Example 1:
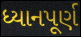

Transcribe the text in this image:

ધ્યાનપૂર્ણ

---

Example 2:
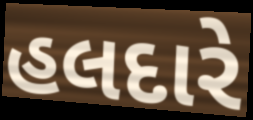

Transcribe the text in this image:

હલદારે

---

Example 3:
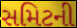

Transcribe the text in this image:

સમિટની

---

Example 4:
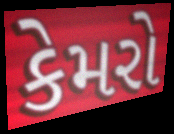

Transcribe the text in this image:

કેમરો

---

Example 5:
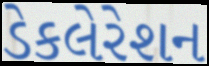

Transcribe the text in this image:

ડેકલેરેશન